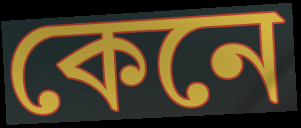
কেনে